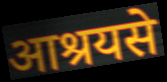
आश्रयसे